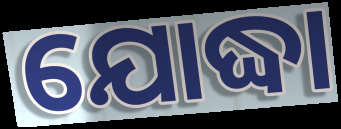
ଯୋଦ୍ଧା